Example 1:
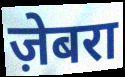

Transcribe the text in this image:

ज़ेबरा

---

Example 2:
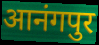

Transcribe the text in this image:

आनंगपुर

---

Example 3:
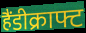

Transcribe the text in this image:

हैंडीक्राफ्ट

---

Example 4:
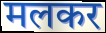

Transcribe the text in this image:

मलकर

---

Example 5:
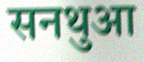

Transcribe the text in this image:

सनथुआ